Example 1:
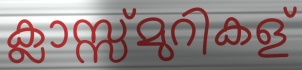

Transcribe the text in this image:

ക്ലാസ്സ്മുറികള്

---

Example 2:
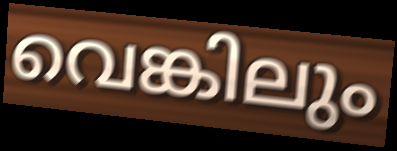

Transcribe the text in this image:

വെങ്കിലും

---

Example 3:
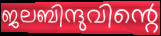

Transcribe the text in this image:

ജലബിന്ദുവിന്റെ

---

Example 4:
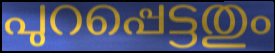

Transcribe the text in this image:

പുറപ്പെട്ടതും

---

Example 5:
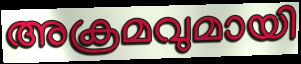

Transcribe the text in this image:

അക്രമവുമായി